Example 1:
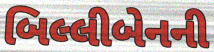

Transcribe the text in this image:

બિલ્લીબેનની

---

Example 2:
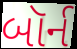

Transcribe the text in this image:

બૉર્ન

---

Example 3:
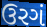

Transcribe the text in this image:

ઉરગં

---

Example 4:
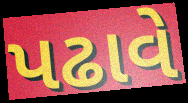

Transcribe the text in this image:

પઢાવે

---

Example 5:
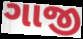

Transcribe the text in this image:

ગાજી